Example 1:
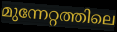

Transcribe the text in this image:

മുന്നേറ്റത്തിലെ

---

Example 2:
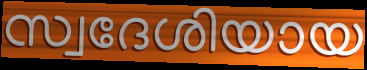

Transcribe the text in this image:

സ്വദേശിയായ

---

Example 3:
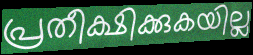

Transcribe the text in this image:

പ്രതീക്ഷിക്കുകയില്ല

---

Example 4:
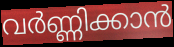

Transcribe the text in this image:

വർണ്ണിക്കാൻ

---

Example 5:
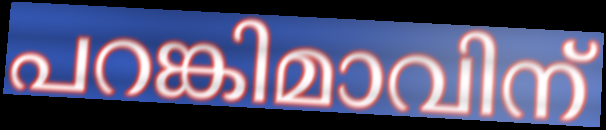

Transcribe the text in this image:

പറങ്കിമാവിന്